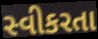
સ્વીકરતા